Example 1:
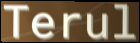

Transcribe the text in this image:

Terul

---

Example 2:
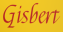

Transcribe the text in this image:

Gisbert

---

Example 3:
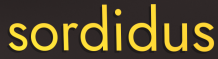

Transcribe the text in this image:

sordidus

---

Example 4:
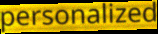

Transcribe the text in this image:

personalized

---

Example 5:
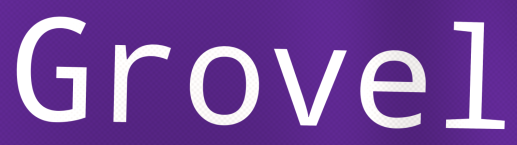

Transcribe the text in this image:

Grovel